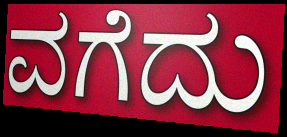
ವಗೆದು